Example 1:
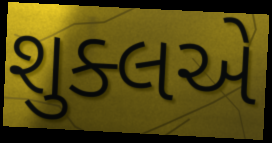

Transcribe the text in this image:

શુક્લએ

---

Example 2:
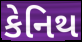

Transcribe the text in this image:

કેનિથ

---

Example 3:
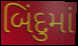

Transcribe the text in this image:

બિંદુમાં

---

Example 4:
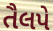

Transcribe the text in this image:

તૈલપે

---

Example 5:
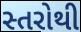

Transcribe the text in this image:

સ્તરોથી